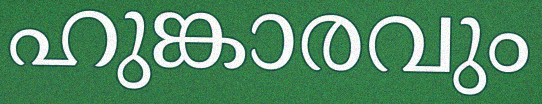
ഹുങ്കാരവും